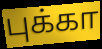
புக்கா